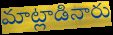
మాట్లాడినారు